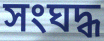
সংঘদ্ধ